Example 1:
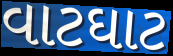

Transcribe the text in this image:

વાટઘાટ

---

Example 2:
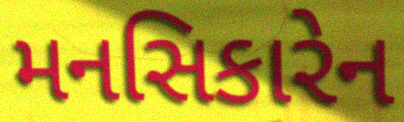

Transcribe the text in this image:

મનસિકારેન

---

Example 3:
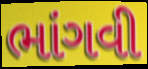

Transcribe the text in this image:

ભાંગવી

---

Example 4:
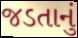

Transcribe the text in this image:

જડતાનું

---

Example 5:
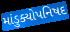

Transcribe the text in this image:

માંડુક્યોપનિષદ